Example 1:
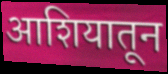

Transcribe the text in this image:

आशियातून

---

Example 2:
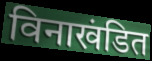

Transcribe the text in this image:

विनाखंडित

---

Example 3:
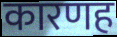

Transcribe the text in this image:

कारणह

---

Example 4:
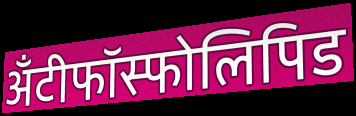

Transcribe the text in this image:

अँटीफॉस्फोलिपिड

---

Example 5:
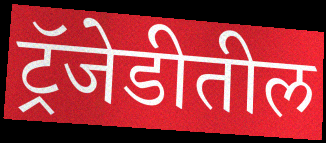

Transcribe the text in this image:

ट्रॅजेडीतील